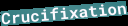
Crucifixation